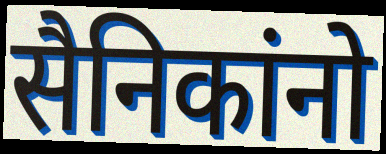
सैनिकांनो